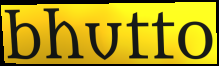
bhutto